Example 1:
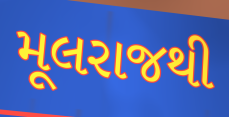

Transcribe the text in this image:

મૂલરાજથી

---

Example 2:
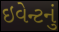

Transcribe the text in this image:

ઇવેન્ટનું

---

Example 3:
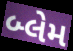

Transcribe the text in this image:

બ્લેમ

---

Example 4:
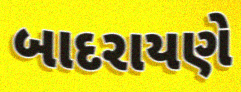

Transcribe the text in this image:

બાદરાયણે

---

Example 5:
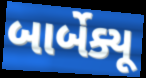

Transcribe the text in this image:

બાર્બેક્યૂ